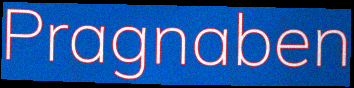
Pragnaben